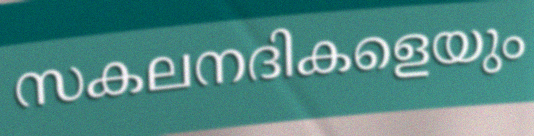
സകലനദികളെയും